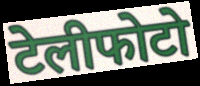
टेलीफोटो